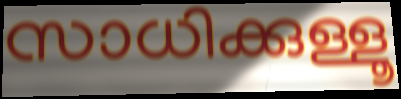
സാധിക്കുള്ളൂ